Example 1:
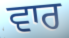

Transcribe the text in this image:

ਵਾਰ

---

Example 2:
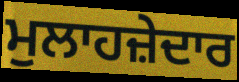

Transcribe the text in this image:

ਮੁਲਾਹਜ਼ੇਦਾਰ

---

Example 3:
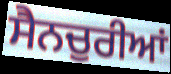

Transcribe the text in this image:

ਸੈਨਚੁਰੀਆਂ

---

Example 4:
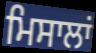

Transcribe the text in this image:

ਮਿਸਾਲਾਂ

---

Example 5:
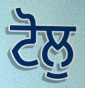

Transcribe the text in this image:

ਟੋਲੁ